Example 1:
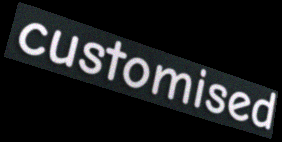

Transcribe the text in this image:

customised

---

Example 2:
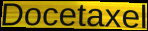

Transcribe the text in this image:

Docetaxel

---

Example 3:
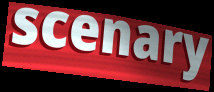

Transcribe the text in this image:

scenary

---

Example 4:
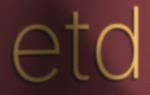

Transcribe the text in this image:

etd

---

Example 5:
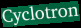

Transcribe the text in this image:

Cyclotron